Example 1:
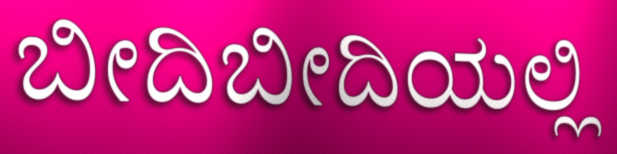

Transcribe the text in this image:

ಬೀದಿಬೀದಿಯಲ್ಲಿ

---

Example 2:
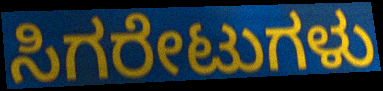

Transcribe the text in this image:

ಸಿಗರೇಟುಗಳು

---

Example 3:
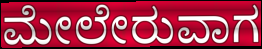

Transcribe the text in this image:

ಮೇಲೇರುವಾಗ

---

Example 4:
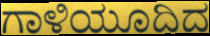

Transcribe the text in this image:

ಗಾಳಿಯೂದಿದ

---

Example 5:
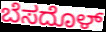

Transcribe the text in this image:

ಬೆಸದೊಳ್